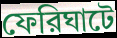
ফেরিঘাটে